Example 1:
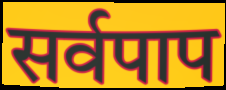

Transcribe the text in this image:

सर्वपाप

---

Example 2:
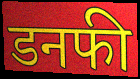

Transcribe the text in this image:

डनफी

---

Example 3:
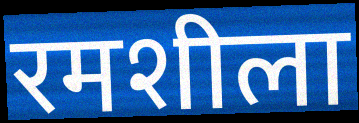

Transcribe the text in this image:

रमशीला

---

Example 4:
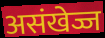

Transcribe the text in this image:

असंखेज्ज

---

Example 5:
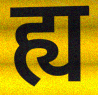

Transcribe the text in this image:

ह्य